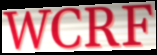
WCRF